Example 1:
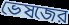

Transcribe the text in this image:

ভেষজের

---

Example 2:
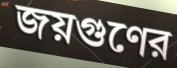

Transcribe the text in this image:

জয়গুণের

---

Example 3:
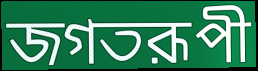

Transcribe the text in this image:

জগতরূপী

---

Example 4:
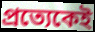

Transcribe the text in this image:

প্রত্যেকেই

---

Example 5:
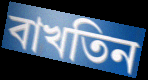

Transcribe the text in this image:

বাখতিন